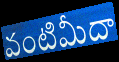
వంటిమీదా